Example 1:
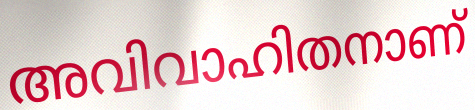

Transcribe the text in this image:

അവിവാഹിതനാണ്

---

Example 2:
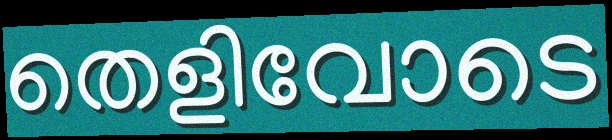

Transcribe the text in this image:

തെളിവോടെ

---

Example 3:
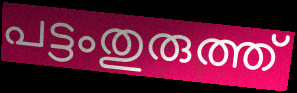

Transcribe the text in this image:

പട്ടംതുരുത്ത്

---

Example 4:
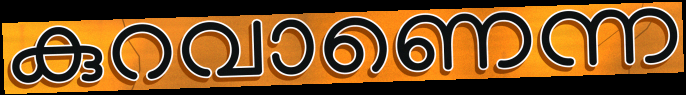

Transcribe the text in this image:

കുറവാണെന്ന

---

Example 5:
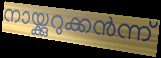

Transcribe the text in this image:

നായ്ക്കുറുക്കൻന്ന്